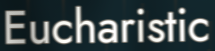
Eucharistic